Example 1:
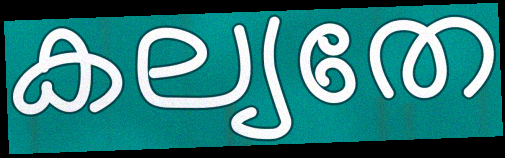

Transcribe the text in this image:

കല്യതേ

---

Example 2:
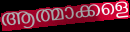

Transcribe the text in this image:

ആത്മാക്കളെ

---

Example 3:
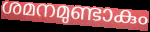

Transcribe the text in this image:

ശമനമുണ്ടാകും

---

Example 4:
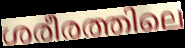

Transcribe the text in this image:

ശരീരത്തിലെ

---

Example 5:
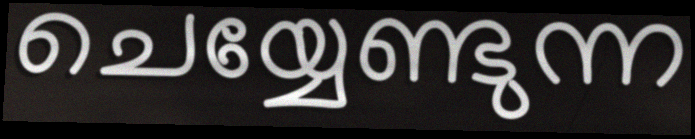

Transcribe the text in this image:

ചെയ്യേണ്ടുന്ന